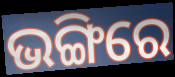
ଭଙ୍ଗିରେ